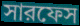
সারফেস